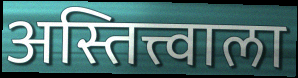
अस्तित्त्वाला